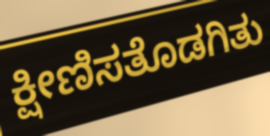
ಕ್ಷೀಣಿಸತೊಡಗಿತು